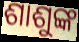
ଶାଶୁଙ୍କ